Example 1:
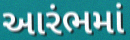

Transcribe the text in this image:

આરંભમાં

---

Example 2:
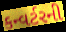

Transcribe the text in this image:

કન્વર્ટરની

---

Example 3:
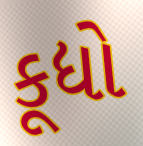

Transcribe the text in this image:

કૂદ્યો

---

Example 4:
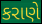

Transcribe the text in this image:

કરાણે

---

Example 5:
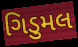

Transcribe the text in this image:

ગિડુમલ